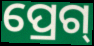
ପ୍ରେଗ୍